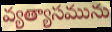
వ్యత్యాసమును